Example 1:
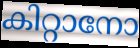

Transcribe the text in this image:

കിറ്റാനോ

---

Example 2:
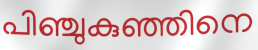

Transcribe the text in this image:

പിഞ്ചുകുഞ്ഞിനെ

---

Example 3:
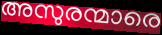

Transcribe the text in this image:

അസുരന്മാരെ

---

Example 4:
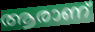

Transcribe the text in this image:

ആരാണ്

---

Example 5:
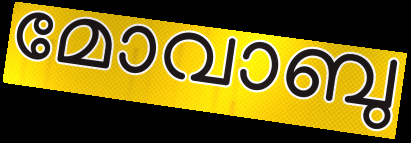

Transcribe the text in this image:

മോവാബു